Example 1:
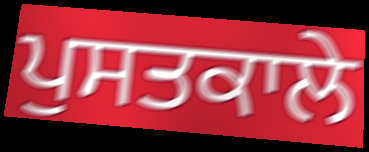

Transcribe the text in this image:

ਪੁਸਤਕਾਲੇ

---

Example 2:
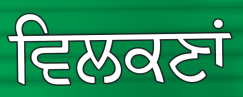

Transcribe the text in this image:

ਵਿਲਕਣਾਂ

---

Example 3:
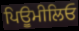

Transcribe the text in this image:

ਪਿਊਮੀਲਿਓ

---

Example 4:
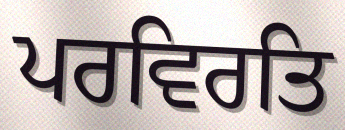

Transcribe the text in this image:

ਪਰਵਿਰਤਿ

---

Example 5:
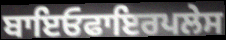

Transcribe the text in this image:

ਬਾਇਓਫਾਇਰਪਲੇਸ